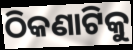
ଠିକଣାଟିକୁ